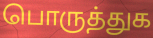
பொருத்துக